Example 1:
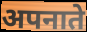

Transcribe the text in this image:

अपनाते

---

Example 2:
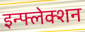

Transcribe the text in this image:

इन्फ्लेक्शन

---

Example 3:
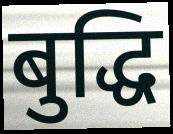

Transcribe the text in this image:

बुद्धि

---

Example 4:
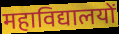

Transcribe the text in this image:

महाविद्यालयों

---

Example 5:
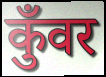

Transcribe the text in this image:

कुँवर